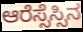
ಆರೆಸ್ಸೆಸ್ಸಿನ